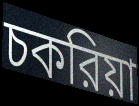
চকরিয়া